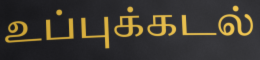
உப்புக்கடல்